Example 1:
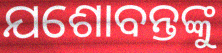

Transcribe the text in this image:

ଯଶୋବନ୍ତଙ୍କୁ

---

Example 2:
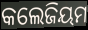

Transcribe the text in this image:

କଲେଜିୟମ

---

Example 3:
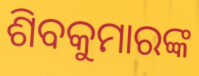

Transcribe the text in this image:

ଶିବକୁମାରଙ୍କ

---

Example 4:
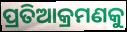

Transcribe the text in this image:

ପ୍ରତିଆକ୍ରମଣକୁ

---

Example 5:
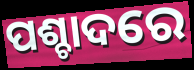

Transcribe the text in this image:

ପଶ୍ଚାଦରେ